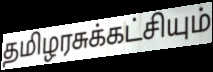
தமிழரசுக்கட்சியும்